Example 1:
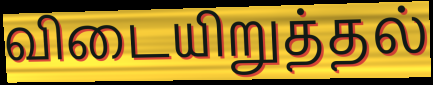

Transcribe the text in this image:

விடையிறுத்தல்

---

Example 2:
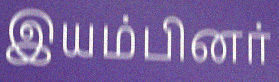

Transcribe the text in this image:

இயம்பினர்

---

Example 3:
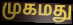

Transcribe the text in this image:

முகமது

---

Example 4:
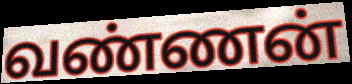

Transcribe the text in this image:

வண்ணன்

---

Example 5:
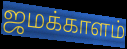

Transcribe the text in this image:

ஜமக்காளம்